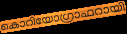
കൊറിയോഗ്രാഫറായി